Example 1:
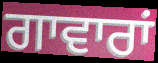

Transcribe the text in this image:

ਗਾਵਾਰਾਂ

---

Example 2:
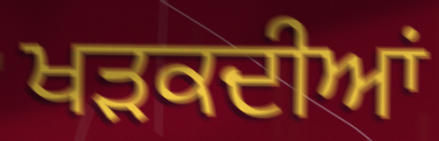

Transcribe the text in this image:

ਖੜਕਦੀਆਂ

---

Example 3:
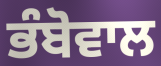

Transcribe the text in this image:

ਭੰਬੋਵਾਲ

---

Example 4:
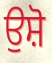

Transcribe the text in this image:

ਉਸ਼ੋ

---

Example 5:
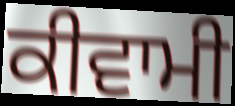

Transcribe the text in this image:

ਕੀਵਾਮੀ